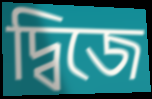
দ্বিজে